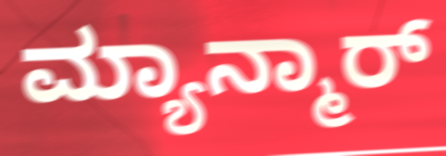
ಮ್ಯಾನ್ಮಾರ್